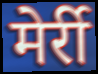
मेर्री